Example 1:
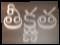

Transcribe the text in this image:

తీక్ష్ణత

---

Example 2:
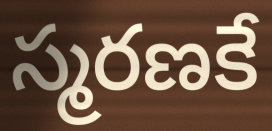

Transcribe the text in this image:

స్మరణకే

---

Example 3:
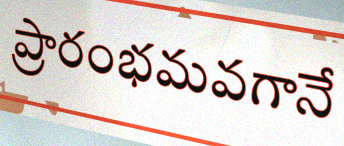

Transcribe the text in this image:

ప్రారంభమవగానే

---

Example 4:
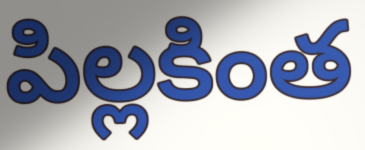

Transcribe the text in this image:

పిల్లకింత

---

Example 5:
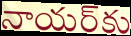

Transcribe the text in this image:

నాయర్‌కు